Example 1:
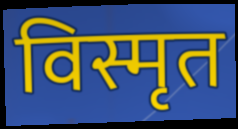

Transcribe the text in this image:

विस्मृत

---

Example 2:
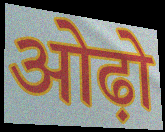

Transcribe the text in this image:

ओढ़ो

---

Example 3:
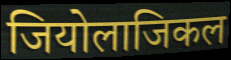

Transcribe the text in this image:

जियोलाजिकल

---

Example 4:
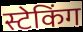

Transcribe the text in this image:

स्टेकिंग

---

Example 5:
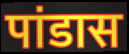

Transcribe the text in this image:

पांडास